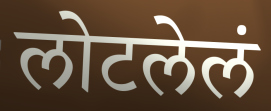
लोटलेलं